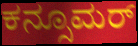
ಕನ್ಸೂಮರ್